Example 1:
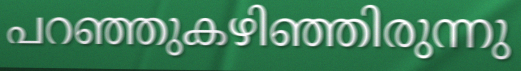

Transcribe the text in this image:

പറഞ്ഞുകഴിഞ്ഞിരുന്നു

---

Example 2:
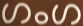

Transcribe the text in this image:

ഗംഗ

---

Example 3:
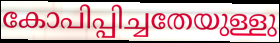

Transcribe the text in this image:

കോപിപ്പിച്ചതേയുള്ളു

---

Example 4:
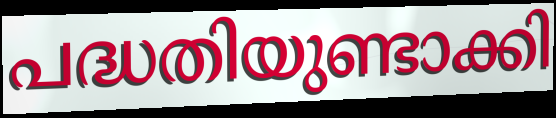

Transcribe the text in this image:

പദ്ധതിയുണ്ടാക്കി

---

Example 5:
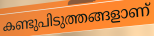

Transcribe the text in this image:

കണ്ടുപിടുത്തങ്ങളാണ്